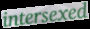
intersexed